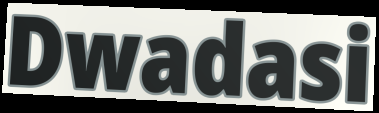
Dwadasi